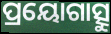
ପ୍ରୟୋଗାତ୍ସୁ